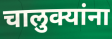
चालुक्यांना